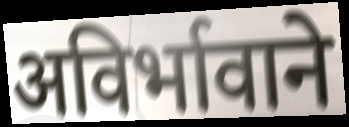
अविर्भावाने